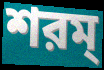
শরম্